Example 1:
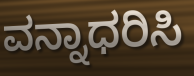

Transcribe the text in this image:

ವನ್ನಾಧರಿಸಿ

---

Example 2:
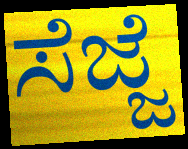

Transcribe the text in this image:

ಸೆಜ್ಜೆ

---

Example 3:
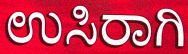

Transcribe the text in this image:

ಉಸಿರಾಗಿ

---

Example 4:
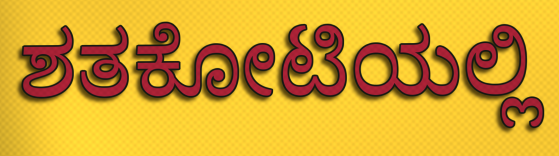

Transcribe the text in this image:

ಶತಕೋಟಿಯಲ್ಲಿ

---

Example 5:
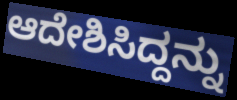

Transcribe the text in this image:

ಆದೇಶಿಸಿದ್ದನ್ನು